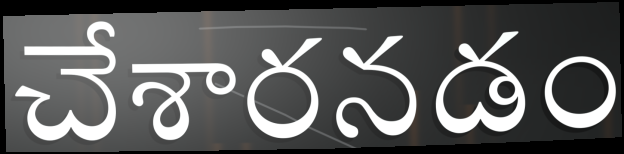
చేశారనడం